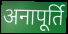
अनापूर्ति